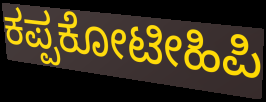
ಕಪ್ಪಕೋಟೀಹಿಪಿ